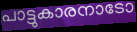
പാട്ടുകാരനാടോ